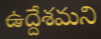
ఉద్దేశమని